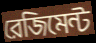
রেজিমেন্ট